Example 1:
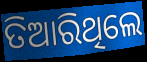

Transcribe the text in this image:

ତିଆରିଥିଲେ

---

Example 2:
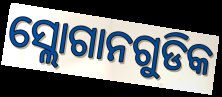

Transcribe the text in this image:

ସ୍ଲୋଗାନଗୁଡିକ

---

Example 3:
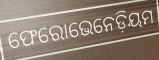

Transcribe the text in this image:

ଫେରୋଭେନେଡ଼ିୟମ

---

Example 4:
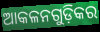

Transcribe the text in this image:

ଆକଳନଗୁଡ଼ିକର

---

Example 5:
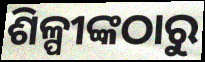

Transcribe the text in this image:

ଶିଳ୍ପୀଙ୍କଠାରୁ